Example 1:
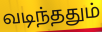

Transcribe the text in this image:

வடிந்ததும்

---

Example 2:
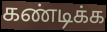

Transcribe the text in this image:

கண்டிக்க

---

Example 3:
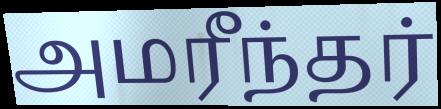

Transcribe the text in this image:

அமரீந்தர்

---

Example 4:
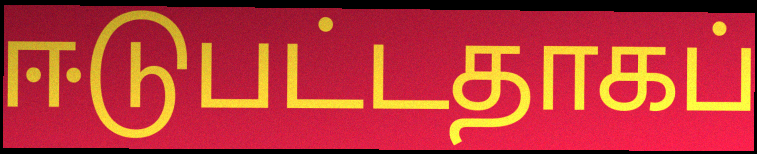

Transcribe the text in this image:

ஈடுபட்டதாகப்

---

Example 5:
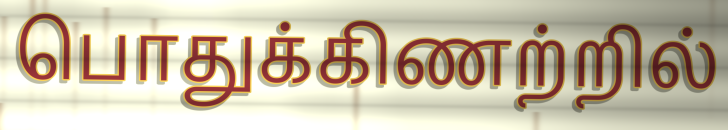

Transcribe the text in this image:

பொதுக்கிணற்றில்